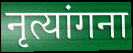
नृत्यांगना